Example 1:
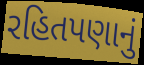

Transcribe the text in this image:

રહિતપણાનું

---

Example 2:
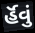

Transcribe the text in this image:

ર્હૅવું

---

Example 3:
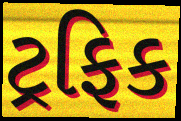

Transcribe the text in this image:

ટ્રફિક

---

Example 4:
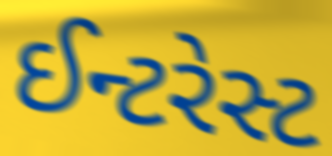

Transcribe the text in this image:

ઈન્ટરેસ્ટ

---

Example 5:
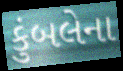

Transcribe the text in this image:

કુંબલેના